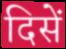
दिसें